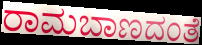
ರಾಮಬಾಣದಂತೆ